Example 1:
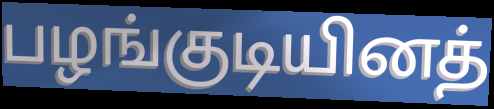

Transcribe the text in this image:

பழங்குடியினத்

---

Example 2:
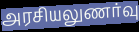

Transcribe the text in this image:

அரசியலுணர்வு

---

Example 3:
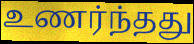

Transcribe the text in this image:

உணர்ந்தது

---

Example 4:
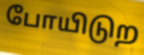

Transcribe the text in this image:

போயிடுற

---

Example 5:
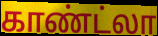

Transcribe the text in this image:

காண்ட்லா